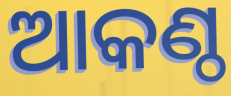
ଆକଣ୍ଠ